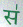
स॑